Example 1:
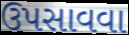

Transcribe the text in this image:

ઉપસાવવા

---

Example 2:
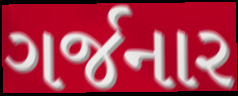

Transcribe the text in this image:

ગર્જનાર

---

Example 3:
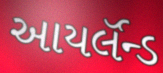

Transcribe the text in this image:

આયર્લૅન્ડ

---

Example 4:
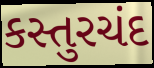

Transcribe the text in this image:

કસ્તુરચંદ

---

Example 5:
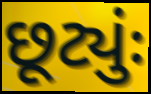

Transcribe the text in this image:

છૂટ્યુંઃ